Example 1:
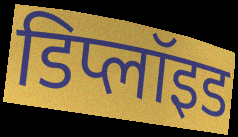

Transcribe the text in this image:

डिप्लॉइड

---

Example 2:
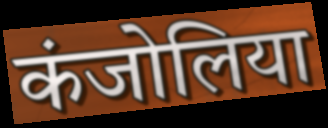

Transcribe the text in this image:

कंजोलिया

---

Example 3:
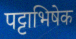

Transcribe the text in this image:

पट्टाभिषेक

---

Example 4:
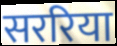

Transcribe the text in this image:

सररिया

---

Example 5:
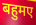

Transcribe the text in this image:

बहुमए